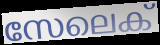
സേലെക്